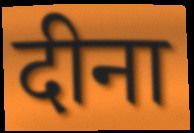
दीना